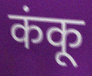
कंकू